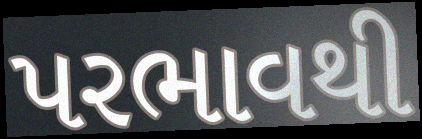
પરભાવથી